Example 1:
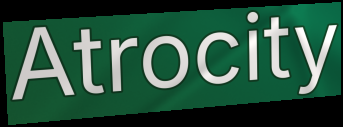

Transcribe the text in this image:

Atrocity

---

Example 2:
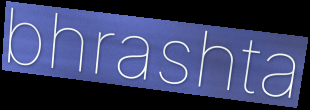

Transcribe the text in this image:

bhrashta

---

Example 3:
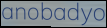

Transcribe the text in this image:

anobadyo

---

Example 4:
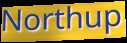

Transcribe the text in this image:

Northup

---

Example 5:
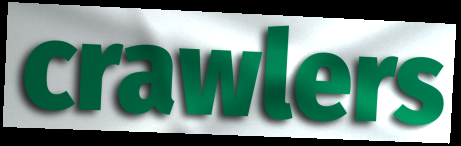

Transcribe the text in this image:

crawlers